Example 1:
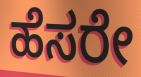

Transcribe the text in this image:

ಹೆಸರೇ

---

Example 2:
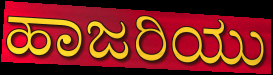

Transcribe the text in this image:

ಹಾಜರಿಯು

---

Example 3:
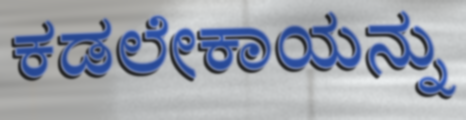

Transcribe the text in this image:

ಕಡಲೇಕಾಯನ್ನು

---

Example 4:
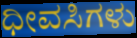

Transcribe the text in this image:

ಧೀವಸಿಗಳು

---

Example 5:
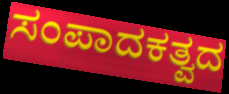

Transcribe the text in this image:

ಸಂಪಾದಕತ್ವದ